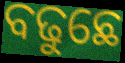
ବଢୁଛେ